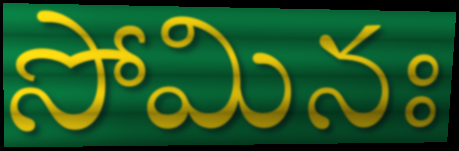
సోమినః